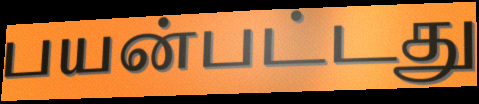
பயன்பட்டது